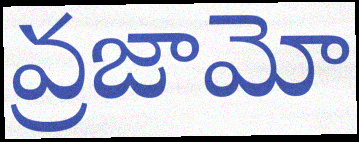
వ్రజామో